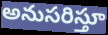
అనుసరిస్తూ